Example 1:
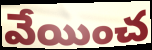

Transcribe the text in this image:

వేయించ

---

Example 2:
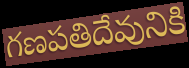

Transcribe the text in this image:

గణపతిదేవునికి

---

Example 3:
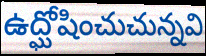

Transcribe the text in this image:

ఉద్ఘోషించుచున్నవి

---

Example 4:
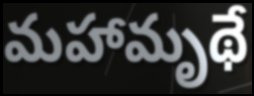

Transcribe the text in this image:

మహామృథే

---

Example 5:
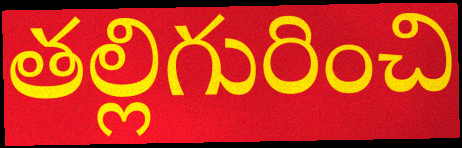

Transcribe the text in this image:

తల్లిగురించి